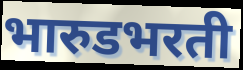
भारुडभरती